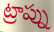
ట్రాప్ను